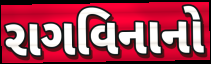
રાગવિનાનો